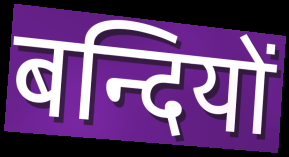
बन्दियों